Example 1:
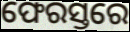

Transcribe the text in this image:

ଫେରସ୍ତରେ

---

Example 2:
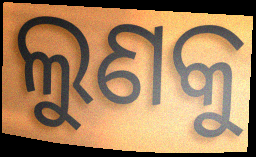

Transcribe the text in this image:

ଲୁଣକୁ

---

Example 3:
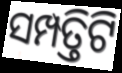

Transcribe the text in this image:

ସମ୍ପତ୍ତିଟି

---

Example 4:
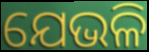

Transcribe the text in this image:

ଯେଭଳି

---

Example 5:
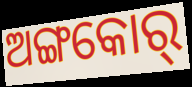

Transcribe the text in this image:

ଅଙ୍ଗକୋର୍